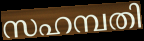
സഹമ്പതി